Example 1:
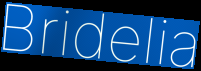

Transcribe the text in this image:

Bridelia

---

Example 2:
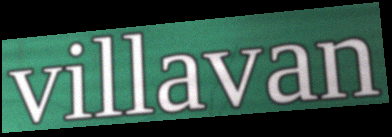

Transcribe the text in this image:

villavan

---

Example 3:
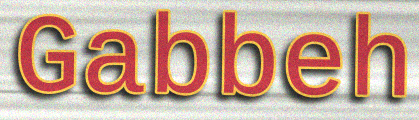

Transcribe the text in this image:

Gabbeh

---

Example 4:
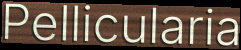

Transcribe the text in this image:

Pellicularia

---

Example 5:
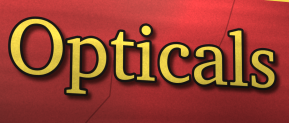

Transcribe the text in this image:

Opticals